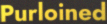
Purloined